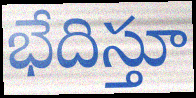
భేదిస్తూ